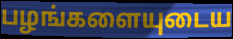
பழங்களையுடைய